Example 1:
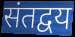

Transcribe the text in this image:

संतद्वय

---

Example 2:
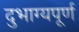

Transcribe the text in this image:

दुभाग्यपूर्ण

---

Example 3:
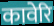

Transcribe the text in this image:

कावेरि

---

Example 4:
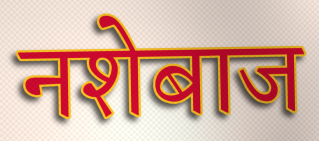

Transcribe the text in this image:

नशेबाज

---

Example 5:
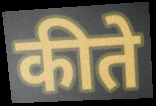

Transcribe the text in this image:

कीते